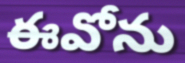
ఈవోను